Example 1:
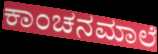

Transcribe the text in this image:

ಕಾಂಚನಮಾಲೆ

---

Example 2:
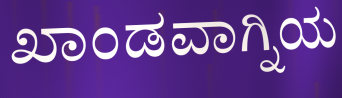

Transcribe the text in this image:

ಖಾಂಡವಾಗ್ನಿಯ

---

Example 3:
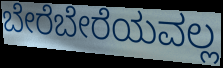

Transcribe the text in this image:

ಬೇರೆಬೇರೆಯವಲ್ಲ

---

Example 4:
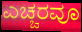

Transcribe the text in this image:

ಎಚ್ಚರವೂ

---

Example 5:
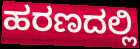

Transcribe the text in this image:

ಹರಣದಲ್ಲಿ